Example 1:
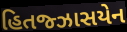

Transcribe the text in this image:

હિતજ્ઝાસયેન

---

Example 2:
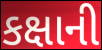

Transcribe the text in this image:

કક્ષાની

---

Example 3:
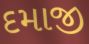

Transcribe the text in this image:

દમાજી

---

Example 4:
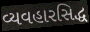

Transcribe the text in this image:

વ્યવહારસિદ્ધ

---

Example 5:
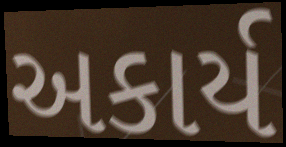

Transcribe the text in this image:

અકાર્ય